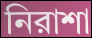
নিরাশা